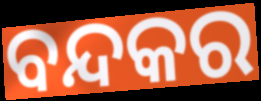
ବନ୍ଦକର